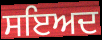
ਸਇਅਦ